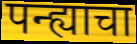
पन्ह्याचा